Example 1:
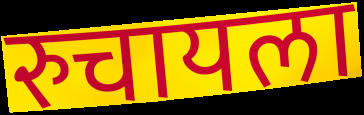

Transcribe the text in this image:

रुचायला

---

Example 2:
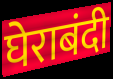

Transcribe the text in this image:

घेराबंदी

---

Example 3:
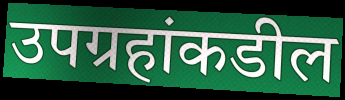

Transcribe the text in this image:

उपग्रहांकडील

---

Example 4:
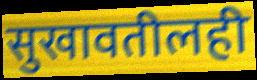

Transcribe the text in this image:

सुखावतीलही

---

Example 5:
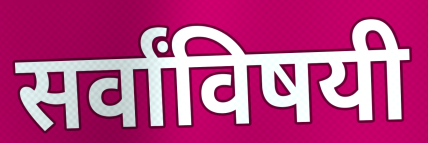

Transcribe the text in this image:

सर्वांविषयी